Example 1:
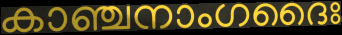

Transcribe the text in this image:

കാഞ്ചനാംഗദൈഃ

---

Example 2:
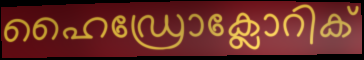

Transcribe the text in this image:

ഹൈഡ്രോക്ലോറിക്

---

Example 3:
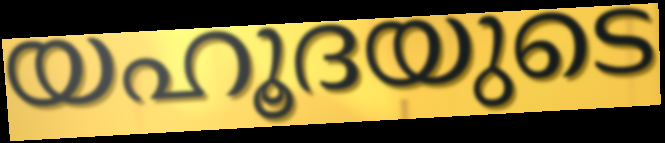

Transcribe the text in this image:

യഹൂദയുടെ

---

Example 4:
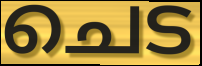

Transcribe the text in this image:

ചെട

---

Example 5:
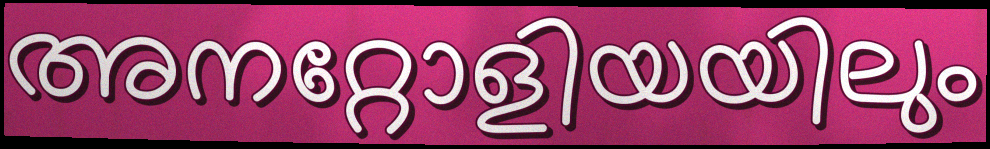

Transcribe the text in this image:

അനറ്റോളിയയിലും